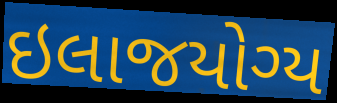
ઇલાજયોગ્ય